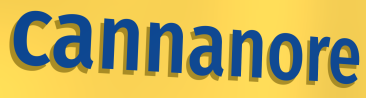
cannanore